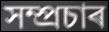
সম্প্ৰচাৰ